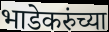
भाडेकरुंच्या